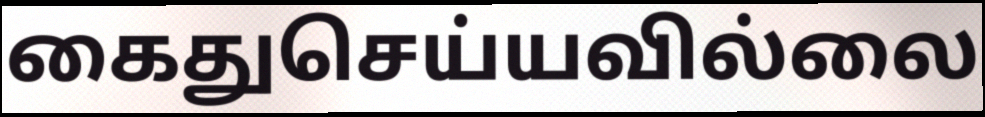
கைதுசெய்யவில்லை